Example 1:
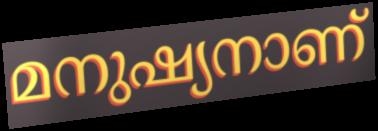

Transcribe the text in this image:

മനുഷ്യനാണ്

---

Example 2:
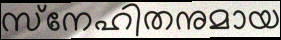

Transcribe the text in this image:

സ്‌നേഹിതനുമായ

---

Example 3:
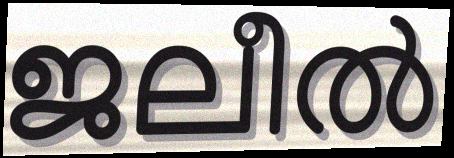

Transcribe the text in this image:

ജലീൽ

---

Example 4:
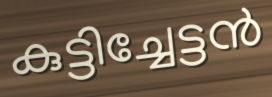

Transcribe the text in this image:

കുട്ടിച്ചേട്ടൻ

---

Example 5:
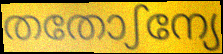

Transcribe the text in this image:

തതോഽന്യേ